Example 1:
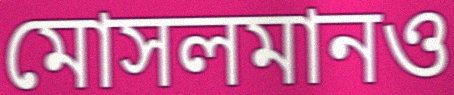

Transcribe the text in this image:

মোসলমানও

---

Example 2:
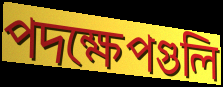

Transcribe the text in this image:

পদক্ষেপগুলি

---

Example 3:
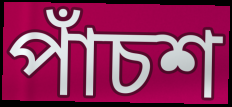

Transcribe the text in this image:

পাঁচশ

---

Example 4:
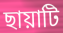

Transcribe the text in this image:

ছায়াটি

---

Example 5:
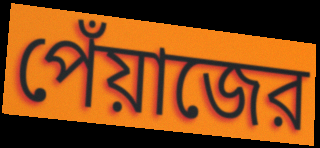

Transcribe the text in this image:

পেঁয়াজের